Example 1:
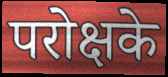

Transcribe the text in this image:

परोक्षके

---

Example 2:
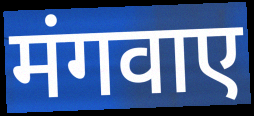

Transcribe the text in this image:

मंगवाए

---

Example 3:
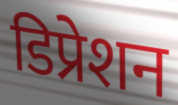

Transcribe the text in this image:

डिप्रेशन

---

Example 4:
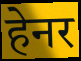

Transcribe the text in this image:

हेनर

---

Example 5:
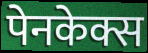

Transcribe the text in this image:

पेनकेक्स